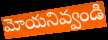
మోయనివ్వండి